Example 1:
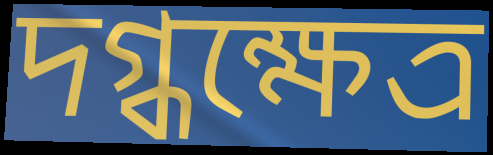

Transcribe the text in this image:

দগ্ধক্ষেত্র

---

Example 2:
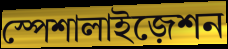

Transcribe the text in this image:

স্পেশালাইজ়েশন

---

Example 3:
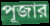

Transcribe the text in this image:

পূজার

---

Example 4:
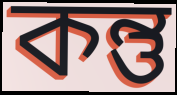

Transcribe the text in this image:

কন্তু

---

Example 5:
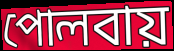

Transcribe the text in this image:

পোলবায়